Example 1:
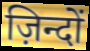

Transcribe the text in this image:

ज़िन्दों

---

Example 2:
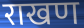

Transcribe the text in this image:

राखण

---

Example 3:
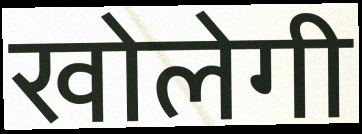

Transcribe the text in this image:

खोलेगी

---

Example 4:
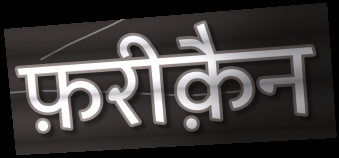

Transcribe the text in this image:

फ़रीक़ैन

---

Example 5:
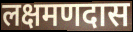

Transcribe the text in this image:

लक्षमणदास